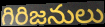
గిరిజనులు